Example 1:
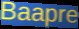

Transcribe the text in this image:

Baapre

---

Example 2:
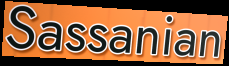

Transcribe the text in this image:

Sassanian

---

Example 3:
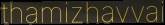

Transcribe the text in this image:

thamizhavvai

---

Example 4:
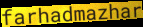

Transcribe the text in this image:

farhadmazhar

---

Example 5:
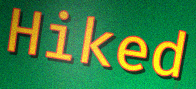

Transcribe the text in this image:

Hiked